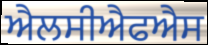
ਐਲਸੀਐਫਐਸ